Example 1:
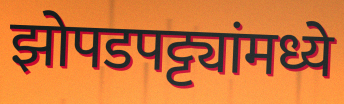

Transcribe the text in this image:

झोपडपट्ट्यांमध्ये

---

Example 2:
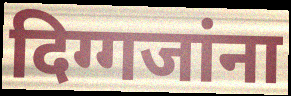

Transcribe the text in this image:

दिग्गजांना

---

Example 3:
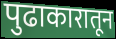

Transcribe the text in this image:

पुढाकारातून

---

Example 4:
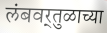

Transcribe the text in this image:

लंबवर्तुळाच्या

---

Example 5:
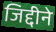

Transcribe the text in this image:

जिद्दीने